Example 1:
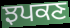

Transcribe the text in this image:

ਝਪਕਣ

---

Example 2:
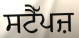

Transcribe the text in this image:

ਸਟੈੱਪਜ਼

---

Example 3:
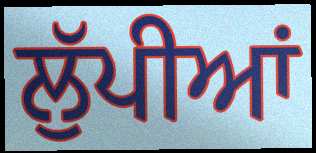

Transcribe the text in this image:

ਲੁੱਪੀਆਂ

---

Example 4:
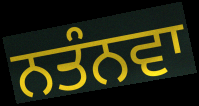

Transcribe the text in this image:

ਨਤੰਨਵਾ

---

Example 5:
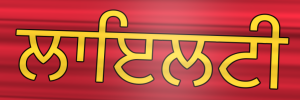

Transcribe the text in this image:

ਲਾਇਲਟੀ